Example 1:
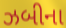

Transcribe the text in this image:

ઝબીના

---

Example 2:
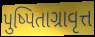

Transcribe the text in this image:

પુષ્પિતાગ્રાવૃત્ત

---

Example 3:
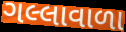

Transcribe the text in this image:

ગલ્લાવાળા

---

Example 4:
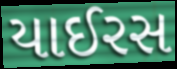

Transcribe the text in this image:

યાઈરસ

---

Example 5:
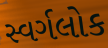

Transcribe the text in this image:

સ્વર્ગલોક